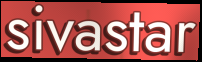
sivastar